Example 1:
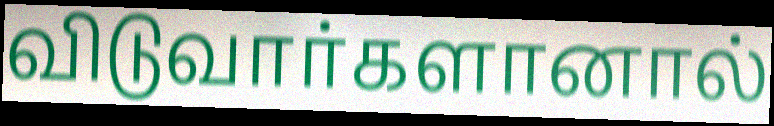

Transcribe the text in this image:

விடுவார்களானால்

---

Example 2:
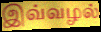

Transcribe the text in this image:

இவ்வழல்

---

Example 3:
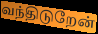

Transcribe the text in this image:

வந்திடுறேன்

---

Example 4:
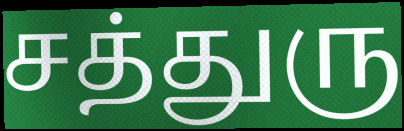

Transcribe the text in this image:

சத்துரு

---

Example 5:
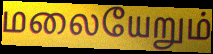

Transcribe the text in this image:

மலையேறும்